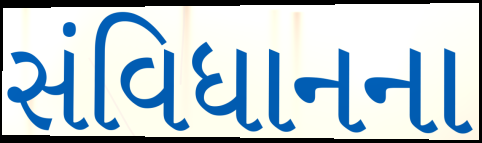
સંવિધાનના